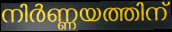
നിർണ്ണയത്തിന്